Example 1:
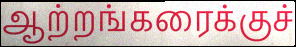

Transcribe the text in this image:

ஆற்றங்கரைக்குச்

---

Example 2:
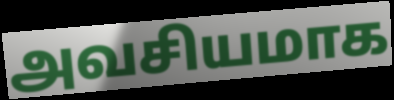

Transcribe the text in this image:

அவசியமாக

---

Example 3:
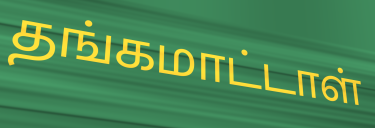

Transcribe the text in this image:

தங்கமாட்டாள்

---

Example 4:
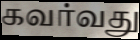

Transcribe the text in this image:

கவர்வது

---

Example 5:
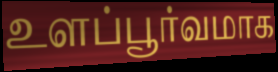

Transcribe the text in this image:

உளப்பூர்வமாக